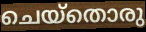
ചെയ്തൊരു